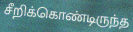
சீறிக்கொண்டிருந்த